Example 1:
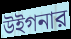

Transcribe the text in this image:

উইগনার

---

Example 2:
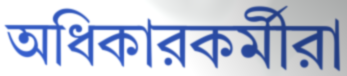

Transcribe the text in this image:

অধিকারকর্মীরা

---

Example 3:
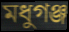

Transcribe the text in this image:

মধুগঞ্জ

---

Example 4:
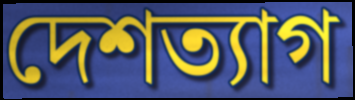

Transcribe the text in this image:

দেশত্যাগ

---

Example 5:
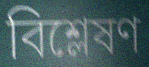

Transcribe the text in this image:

বিশ্লেষণ